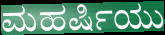
ಮಹರ್ಷಿಯು